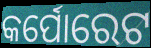
କର୍ପୋରେଟ